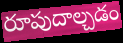
రూపుదాల్చడం